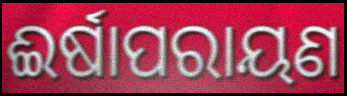
ଈର୍ଷାପରାୟଣ